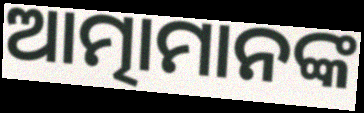
ଆତ୍ମାମାନଙ୍କ